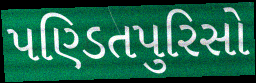
પણ્ડિતપુરિસો